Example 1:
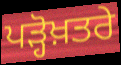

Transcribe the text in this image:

ਪੜ੍ਹੋਖ਼ਤਰੇ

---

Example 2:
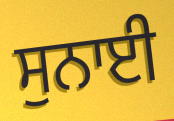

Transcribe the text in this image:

ਸੁਨਾਈ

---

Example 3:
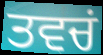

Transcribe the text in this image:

ਤਵਚਂ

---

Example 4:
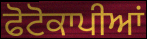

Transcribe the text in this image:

ਫੋਟੋਕਾਪੀਆਂ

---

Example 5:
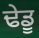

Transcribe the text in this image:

ਢੇਡੂ